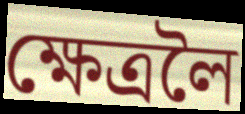
ক্ষেত্ৰলৈ